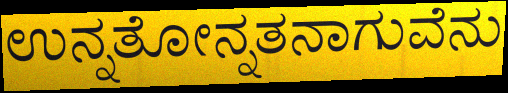
ಉನ್ನತೋನ್ನತನಾಗುವೆನು